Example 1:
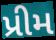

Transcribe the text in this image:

પ્રીમ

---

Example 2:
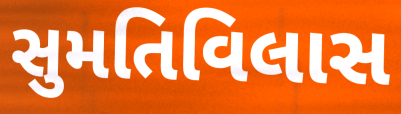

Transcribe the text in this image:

સુમતિવિલાસ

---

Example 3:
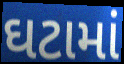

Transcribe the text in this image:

ઘટામાં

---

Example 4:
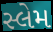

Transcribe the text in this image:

સ્લેમ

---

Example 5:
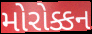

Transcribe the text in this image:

મોરોક્કન